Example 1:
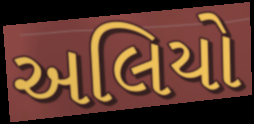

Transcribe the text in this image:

અલિયો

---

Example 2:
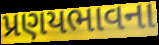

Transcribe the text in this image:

પ્રણયભાવના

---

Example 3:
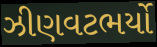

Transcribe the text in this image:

ઝીણવટભર્યો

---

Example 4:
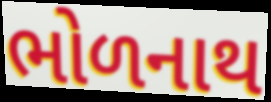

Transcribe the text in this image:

ભોળનાથ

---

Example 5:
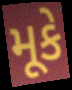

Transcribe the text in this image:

મૂકે